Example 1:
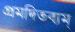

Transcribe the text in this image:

প্রমদিতব্যম্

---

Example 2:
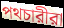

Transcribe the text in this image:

পথচারীরা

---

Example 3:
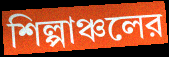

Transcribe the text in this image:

শিল্পাঞ্চলের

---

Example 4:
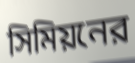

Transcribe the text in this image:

সিমিয়নের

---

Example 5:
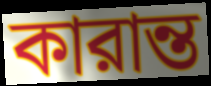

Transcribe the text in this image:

কারান্ত